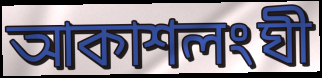
আকাশলংঘী